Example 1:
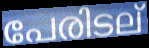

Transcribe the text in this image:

പേരിടല്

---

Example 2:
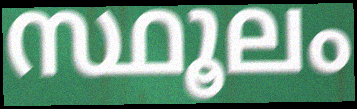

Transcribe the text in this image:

സ്ഥൂലം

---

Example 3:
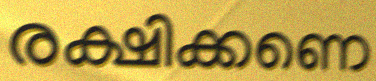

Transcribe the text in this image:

രക്ഷിക്കണെ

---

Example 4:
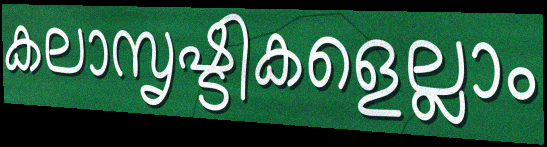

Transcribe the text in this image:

കലാസൃഷ്ടികളെല്ലാം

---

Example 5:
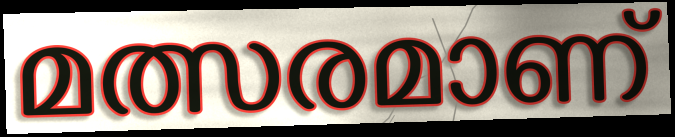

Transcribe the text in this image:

മത്സരമാണ്